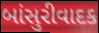
બાંસુરીવાદક